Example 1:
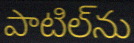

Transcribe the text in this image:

పాటిల్‌ను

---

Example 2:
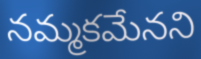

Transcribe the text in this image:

నమ్మకమేనని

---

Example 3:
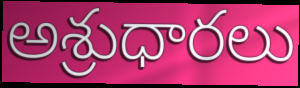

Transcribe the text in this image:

అశ్రుధారలు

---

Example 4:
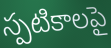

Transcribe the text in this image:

స్పటికాలపై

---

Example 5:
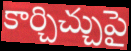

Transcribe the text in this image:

కార్చిచ్చుపై